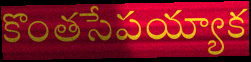
కొంతసేపయ్యాక